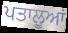
ਪਤਾਲੂਆਂ